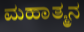
ಮಹಾತ್ಮನ